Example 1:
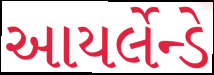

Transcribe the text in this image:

આયર્લેન્ડે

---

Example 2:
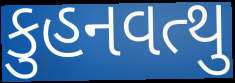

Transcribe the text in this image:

કુહનવત્થુ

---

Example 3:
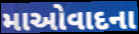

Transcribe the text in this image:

માઓવાદના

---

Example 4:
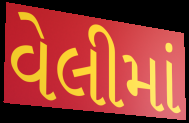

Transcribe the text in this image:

વેલીમાં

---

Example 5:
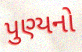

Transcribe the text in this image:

પુણ્યનો